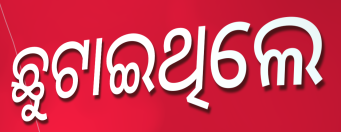
ଛୁଟାଇଥିଲେ